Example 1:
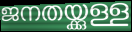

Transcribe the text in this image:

ജനതയ്ക്കുള്ള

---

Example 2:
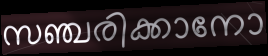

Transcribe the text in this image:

സഞ്ചരിക്കാനോ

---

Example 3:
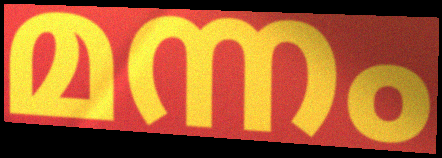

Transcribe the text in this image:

മന്നം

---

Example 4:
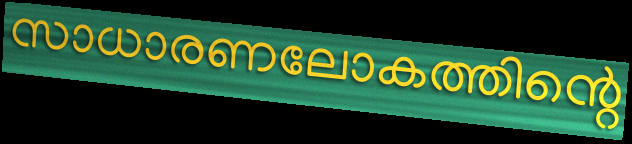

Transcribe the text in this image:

സാധാരണലോകത്തിന്റെ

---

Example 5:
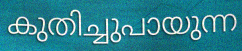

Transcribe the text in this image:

കുതിച്ചുപായുന്ന